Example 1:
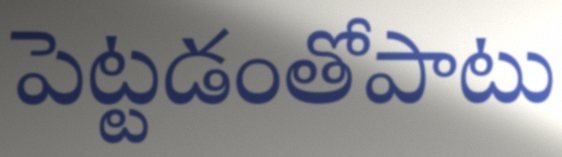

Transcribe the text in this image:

పెట్టడంతోపాటు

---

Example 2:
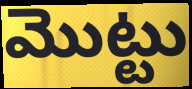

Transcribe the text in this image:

మొట్టు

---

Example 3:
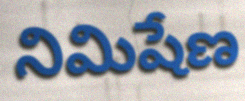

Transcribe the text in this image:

నిమిషేణ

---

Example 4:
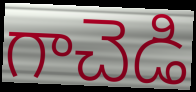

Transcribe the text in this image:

గాచెడి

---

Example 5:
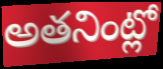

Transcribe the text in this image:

అతనింట్లో